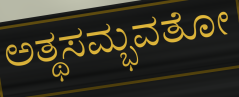
ಅತ್ಥಸಮ್ಭವತೋ